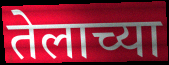
तेलाच्या